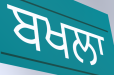
ਬਖਲਾ